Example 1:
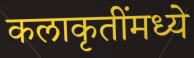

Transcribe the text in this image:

कलाकृतींमध्ये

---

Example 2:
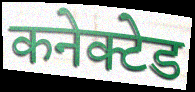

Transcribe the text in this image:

कनेक्टेड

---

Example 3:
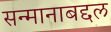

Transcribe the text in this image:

सन्मानाबद्दल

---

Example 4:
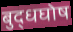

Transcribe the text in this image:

बुद्धघोष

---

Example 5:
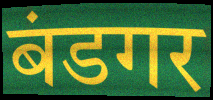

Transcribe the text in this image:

बंडगर